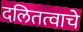
दलितत्वाचे